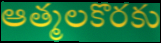
ఆత్మలకొరకు